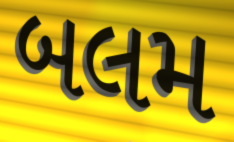
બલમ